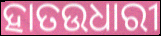
ହାତଉଧାରୀ